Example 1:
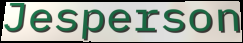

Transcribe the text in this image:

Jesperson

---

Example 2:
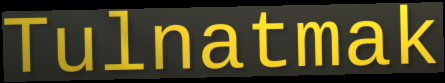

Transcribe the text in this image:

Tulnatmak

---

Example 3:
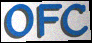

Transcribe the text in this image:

OFC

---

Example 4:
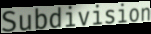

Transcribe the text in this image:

Subdivision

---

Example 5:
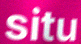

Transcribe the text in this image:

situ